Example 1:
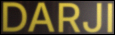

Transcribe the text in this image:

DARJI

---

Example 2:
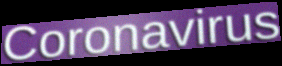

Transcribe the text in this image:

Coronavirus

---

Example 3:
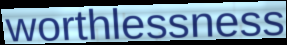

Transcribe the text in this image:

worthlessness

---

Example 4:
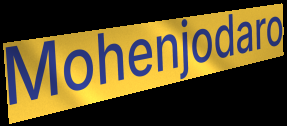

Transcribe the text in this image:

Mohenjodaro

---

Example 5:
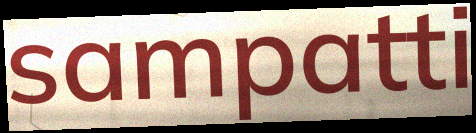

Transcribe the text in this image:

sampatti